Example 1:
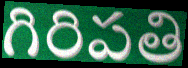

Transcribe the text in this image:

గిరిపతి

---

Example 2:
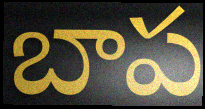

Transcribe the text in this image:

బాప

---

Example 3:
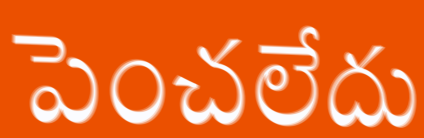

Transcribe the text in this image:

పెంచలేదు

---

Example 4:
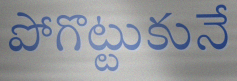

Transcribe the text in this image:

పోగొట్టుకునే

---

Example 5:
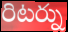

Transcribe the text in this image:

రిటర్ను